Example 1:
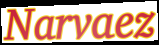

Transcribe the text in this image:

Narvaez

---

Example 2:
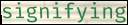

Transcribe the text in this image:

signifying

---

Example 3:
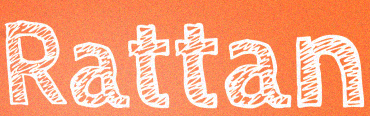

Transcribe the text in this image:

Rattan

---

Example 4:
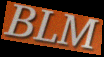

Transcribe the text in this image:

BLM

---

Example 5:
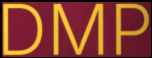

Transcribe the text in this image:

DMP